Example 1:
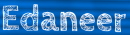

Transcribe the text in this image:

Edaneer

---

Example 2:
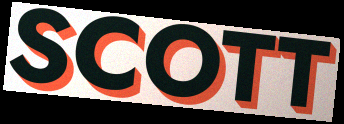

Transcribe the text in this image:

SCOTT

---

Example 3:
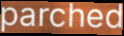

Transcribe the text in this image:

parched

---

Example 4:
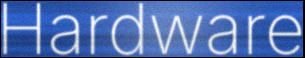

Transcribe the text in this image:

Hardware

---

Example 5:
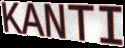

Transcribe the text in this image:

KANTI